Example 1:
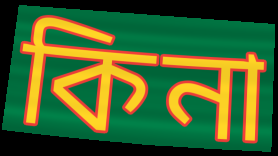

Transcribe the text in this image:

কিনা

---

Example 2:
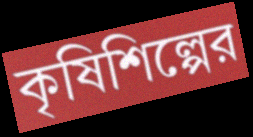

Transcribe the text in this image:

কৃষিশিল্পের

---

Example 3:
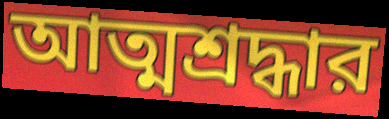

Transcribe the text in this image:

আত্মশ্রদ্ধার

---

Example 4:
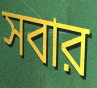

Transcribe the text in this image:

সবার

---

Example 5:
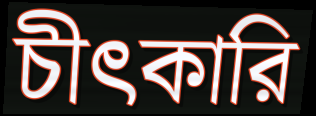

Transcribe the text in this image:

চীৎকারি